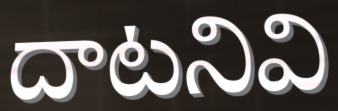
దాటనివి